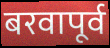
बरवापूर्व